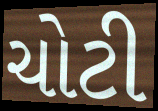
ચોટી